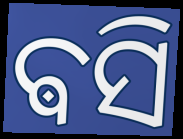
ଵସି